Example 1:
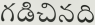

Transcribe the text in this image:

గడిచినది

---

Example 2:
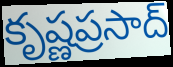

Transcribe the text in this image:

కృష్ణప్రసాద్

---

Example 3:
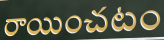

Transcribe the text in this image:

రాయించటం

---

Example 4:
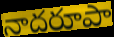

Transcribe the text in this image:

నాదరూపా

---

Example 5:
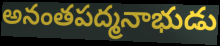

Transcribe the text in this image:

అనంతపద్మనాభుడు